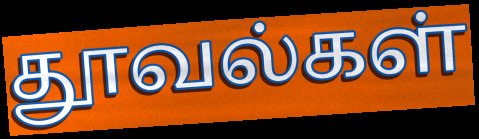
தூவல்கள்